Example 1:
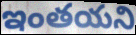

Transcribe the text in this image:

ఇంతయని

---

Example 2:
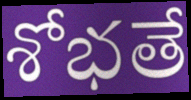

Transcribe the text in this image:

శోభతే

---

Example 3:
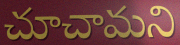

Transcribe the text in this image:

చూచామని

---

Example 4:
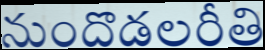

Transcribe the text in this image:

నుందొడలరీతి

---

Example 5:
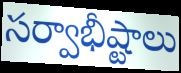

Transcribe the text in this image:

సర్వాభీష్టాలు